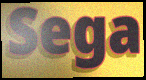
Sega